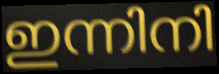
ഇന്നിനി